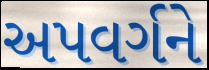
અપવર્ગને